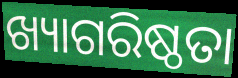
ଖ୍ୟାଗରିଷ୍ଠତା